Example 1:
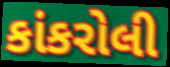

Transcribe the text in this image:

કાંકરોલી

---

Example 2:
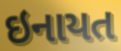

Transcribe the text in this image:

ઇનાયત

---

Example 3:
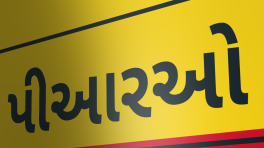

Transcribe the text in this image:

પીઆરઓ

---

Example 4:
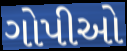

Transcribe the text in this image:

ગોપીઓ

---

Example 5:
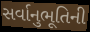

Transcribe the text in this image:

સર્વાનુભૂતિની